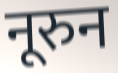
नूरुन